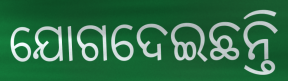
ଯୋଗଦେଇଛନ୍ତି